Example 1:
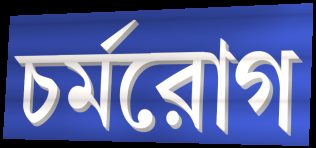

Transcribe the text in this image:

চর্মরোগ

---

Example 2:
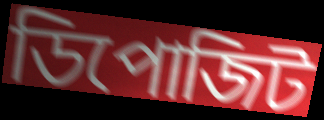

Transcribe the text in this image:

ডিপোজিট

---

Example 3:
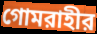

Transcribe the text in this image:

গোমরাহীর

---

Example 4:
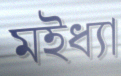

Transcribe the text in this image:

মইধ্যা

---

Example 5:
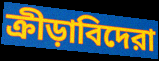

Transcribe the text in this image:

ক্রীড়াবিদেরা